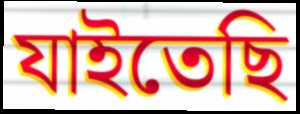
যাইতেছি